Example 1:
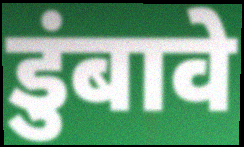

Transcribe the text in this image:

डुंबावे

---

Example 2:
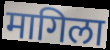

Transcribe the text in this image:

मागिला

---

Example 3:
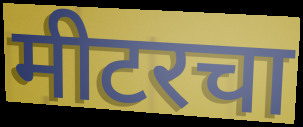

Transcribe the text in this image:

मीटरचा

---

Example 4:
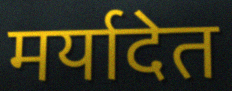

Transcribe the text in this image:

मर्यादेत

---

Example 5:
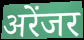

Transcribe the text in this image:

अरेंजर